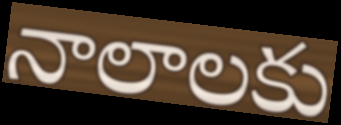
నాలాలకు